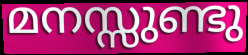
മനസ്സുണ്ടു